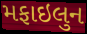
મફાઇલુન